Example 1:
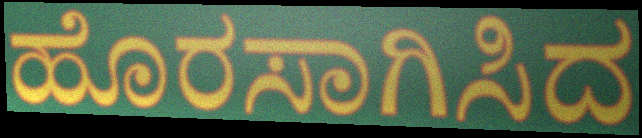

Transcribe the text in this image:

ಹೊರಸಾಗಿಸಿದ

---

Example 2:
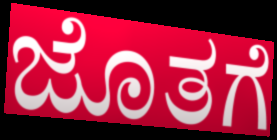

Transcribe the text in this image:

ಜೊತಗೆ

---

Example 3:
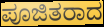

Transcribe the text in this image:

ಪೂಜಿತರಾದ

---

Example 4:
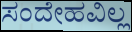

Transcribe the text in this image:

ಸಂದೇಹವಿಲ್ಲ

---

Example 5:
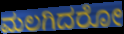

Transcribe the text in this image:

ಮಲಗಿದರೋ